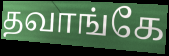
தவாங்கே